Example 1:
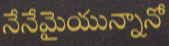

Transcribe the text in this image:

నేనేమైయున్నానో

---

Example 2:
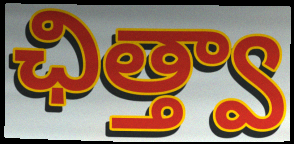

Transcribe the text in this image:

ఛిత్త్వా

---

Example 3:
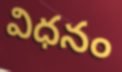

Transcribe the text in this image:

విధనం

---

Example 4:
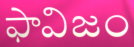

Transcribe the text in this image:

ఫావిజం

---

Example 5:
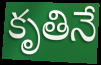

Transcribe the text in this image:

కృతినే